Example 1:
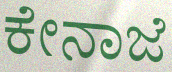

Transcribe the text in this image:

ಕೇನಾಜೆ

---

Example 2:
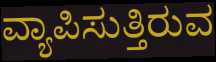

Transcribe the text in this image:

ವ್ಯಾಪಿಸುತ್ತಿರುವ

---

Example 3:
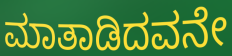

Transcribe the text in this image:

ಮಾತಾಡಿದವನೇ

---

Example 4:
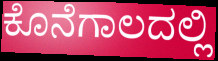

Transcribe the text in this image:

ಕೊನೆಗಾಲದಲ್ಲಿ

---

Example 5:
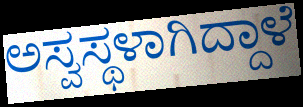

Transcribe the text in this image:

ಅಸ್ವಸ್ಥಳಾಗಿದ್ದಾಳೆ